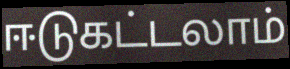
ஈடுகட்டலாம்